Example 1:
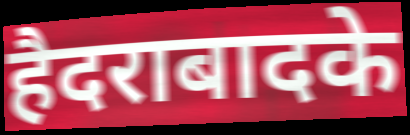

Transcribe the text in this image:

हैदराबादके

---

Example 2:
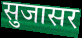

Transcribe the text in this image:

सुजासर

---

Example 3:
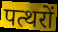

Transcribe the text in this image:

पत्थरों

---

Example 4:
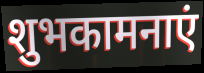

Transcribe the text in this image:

शुभकामनाएं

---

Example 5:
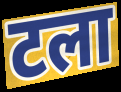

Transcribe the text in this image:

टला